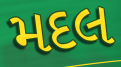
મદલ